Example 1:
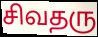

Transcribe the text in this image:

சிவதரு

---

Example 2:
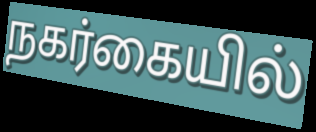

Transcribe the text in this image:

நகர்கையில்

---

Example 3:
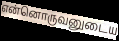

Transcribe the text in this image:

என்னொருவனுடைய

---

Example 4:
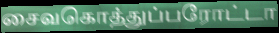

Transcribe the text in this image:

சைவகொத்துப்பரோட்டா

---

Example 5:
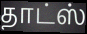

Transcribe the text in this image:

தாட்ஸ்